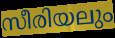
സീരിയലും